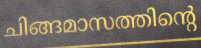
ചിങ്ങമാസത്തിന്റെ